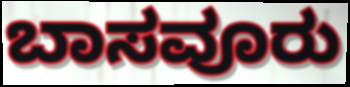
ಬಾಸವೂರು